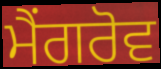
ਮੈਂਗਰੋਵ